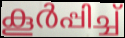
കൂർപ്പിച്ച്